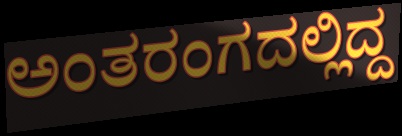
ಅಂತರಂಗದಲ್ಲಿದ್ದ